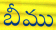
బీము